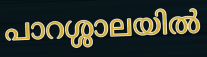
പാറശ്ശാലയിൽ